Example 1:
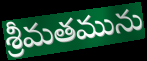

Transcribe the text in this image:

శ్రీమతమును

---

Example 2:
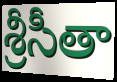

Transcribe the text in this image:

శ్రీసీతా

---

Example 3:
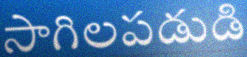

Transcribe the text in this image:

సాగిలపడుడి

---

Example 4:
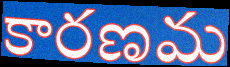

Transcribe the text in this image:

కారణమ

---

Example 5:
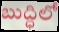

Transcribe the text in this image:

బుద్ధిలో